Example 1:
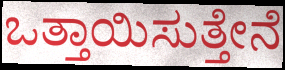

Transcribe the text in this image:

ಒತ್ತಾಯಿಸುತ್ತೇನೆ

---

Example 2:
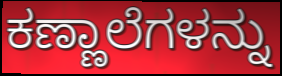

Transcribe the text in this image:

ಕಣ್ಣಾಲೆಗಳನ್ನು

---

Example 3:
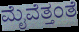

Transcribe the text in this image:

ಮೈವೆತ್ತಂತೆ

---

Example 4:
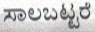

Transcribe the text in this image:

ಸಾಲಬಟ್ಟರೆ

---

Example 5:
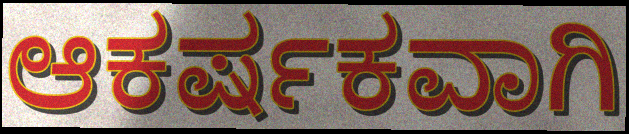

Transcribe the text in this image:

ಆಕರ್ಷಕವಾಗಿ